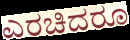
ಎರಚಿದರೂ